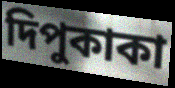
দিপুকাকা